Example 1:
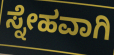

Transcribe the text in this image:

ಸ್ನೇಹವಾಗಿ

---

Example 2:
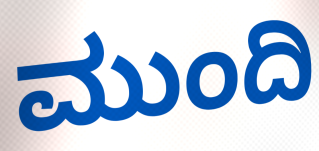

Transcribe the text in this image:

ಮುಂದಿ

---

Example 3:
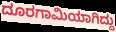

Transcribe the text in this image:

ದೂರಗಾಮಿಯಾಗಿದ್ದು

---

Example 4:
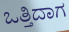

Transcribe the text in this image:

ಒತ್ತಿದಾಗ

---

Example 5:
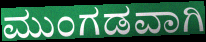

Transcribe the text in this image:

ಮುಂಗಡವಾಗಿ